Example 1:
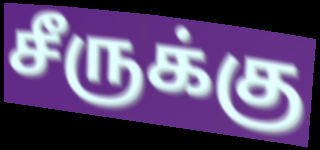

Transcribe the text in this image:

சீருக்கு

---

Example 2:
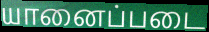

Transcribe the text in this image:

யானைப்படை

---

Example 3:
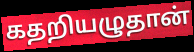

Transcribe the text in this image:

கதறியழுதான்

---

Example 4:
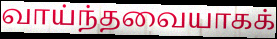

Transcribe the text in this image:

வாய்ந்தவையாகக்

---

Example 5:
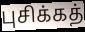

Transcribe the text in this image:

புசிக்கத்